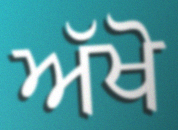
ਅੱਖੋ